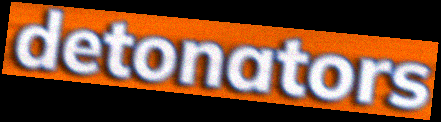
detonators